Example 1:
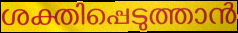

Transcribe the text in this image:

ശക്തിപ്പെടുത്താൻ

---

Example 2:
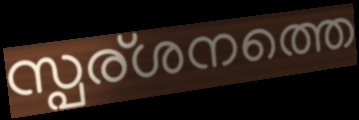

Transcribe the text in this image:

സ്പര്ശനത്തെ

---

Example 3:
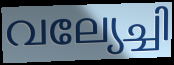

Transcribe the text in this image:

വല്യേച്ചി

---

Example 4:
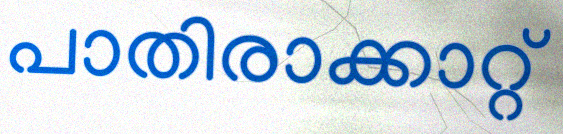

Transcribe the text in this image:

പാതിരാക്കാറ്റ്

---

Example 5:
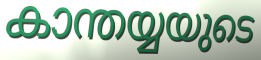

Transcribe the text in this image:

കാന്തയ്യയുടെ